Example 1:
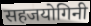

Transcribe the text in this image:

सहजयोगिनी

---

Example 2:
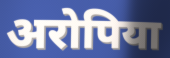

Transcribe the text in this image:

अरोपिया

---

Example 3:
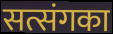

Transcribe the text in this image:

सत्संगका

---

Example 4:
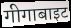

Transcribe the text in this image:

गीगाबाइट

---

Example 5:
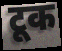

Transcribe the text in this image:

टूक